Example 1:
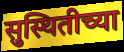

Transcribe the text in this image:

सुस्थितीच्या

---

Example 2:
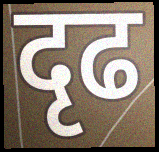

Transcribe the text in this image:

दृढ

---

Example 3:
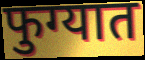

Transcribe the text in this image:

फुग्यात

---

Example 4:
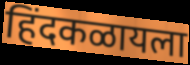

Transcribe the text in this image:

हिंदकळायला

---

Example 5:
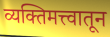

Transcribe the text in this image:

व्यक्तिमत्त्वातून